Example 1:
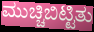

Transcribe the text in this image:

ಮುಚ್ಚಿಬಿಟ್ಟಿತು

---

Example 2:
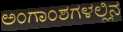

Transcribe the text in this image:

ಅಂಗಾಂಶಗಳಲ್ಲಿನ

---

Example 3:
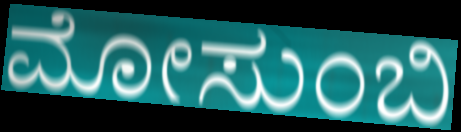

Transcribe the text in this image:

ಮೋಸುಂಬಿ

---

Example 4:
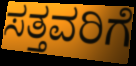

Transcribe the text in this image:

ಸತ್ತವರಿಗೆ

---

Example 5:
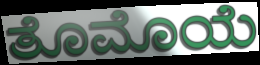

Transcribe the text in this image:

ತೊಮೊಯೆ